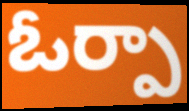
ఓర్పా